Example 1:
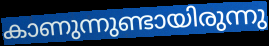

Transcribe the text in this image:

കാണുന്നുണ്ടായിരുന്നു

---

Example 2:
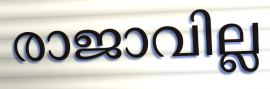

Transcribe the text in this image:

രാജാവില്ല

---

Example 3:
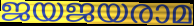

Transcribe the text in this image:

ജയജയരാമ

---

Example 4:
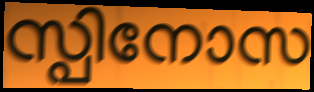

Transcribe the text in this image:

സ്പിനോസ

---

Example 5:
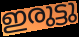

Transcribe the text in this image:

ഇരുട്ടു